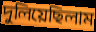
দুলিয়েছিলাম